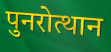
पुनरोत्थान